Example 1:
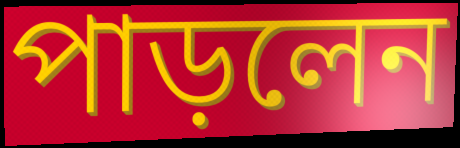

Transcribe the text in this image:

পাড়লেন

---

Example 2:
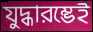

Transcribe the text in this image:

যুদ্ধারম্ভেই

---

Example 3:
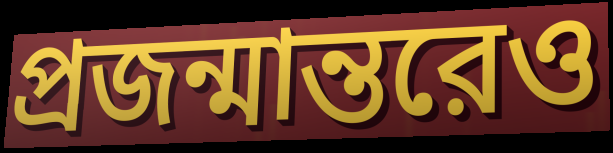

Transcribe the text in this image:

প্রজন্মান্তরেও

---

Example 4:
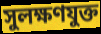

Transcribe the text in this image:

সুলক্ষণযুক্ত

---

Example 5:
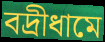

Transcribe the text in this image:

বদ্রীধামে